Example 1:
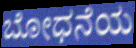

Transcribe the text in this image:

ಬೋಧನೆಯ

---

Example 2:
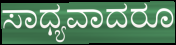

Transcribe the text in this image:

ಸಾಧ್ಯವಾದರೂ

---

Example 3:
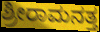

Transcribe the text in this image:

ಶ್ರೀರಾಮನತ್ತ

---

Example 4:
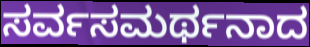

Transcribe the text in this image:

ಸರ್ವಸಮರ್ಥನಾದ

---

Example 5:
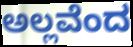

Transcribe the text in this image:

ಅಲ್ಲವೆಂದ